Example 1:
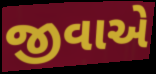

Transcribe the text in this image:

જીવાએ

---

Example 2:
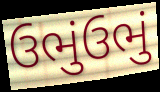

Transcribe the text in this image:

ઉભુંઉભું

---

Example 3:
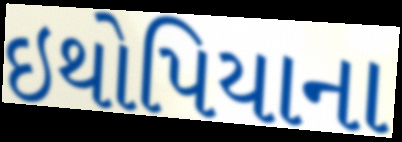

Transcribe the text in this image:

ઇથોપિયાના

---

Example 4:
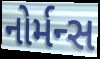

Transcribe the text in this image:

નોર્મન્સ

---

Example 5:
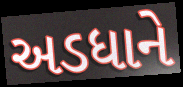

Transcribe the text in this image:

અડધાને